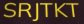
SRJTKT